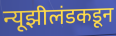
न्यूझीलंडकडून